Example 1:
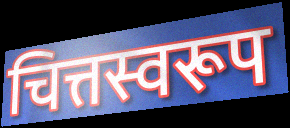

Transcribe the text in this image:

चित्तस्वरूप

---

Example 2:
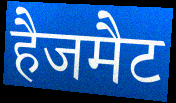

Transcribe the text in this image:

हैजमैट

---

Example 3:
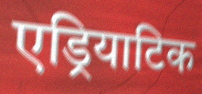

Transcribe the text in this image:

एड्रियाटिक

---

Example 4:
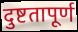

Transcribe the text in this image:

दुष्टतापूर्ण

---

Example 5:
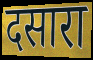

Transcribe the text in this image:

दसारा